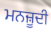
ਮਨਜ਼ੂਦੀ